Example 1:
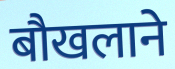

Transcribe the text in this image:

बौखलाने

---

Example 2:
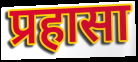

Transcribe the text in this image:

प्रहासा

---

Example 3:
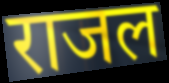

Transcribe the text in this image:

राजल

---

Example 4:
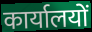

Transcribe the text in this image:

कार्यालयों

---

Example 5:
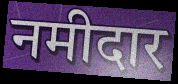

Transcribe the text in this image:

नमीदार